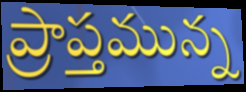
ప్రాప్తమున్న